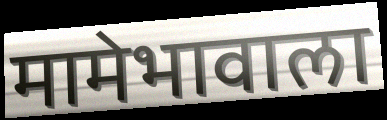
मामेभावाला